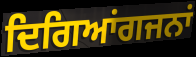
ਦਿਗਿਆਂਗਜਨਾਂ